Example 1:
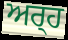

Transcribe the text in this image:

ਅਰ੍‍ਹ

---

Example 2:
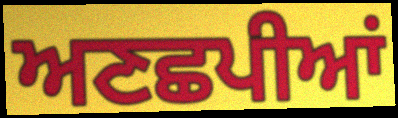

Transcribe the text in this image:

ਅਣਛਪੀਆਂ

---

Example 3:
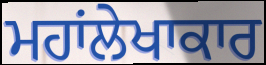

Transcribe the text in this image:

ਮਹਾਂਲੇਖਾਕਾਰ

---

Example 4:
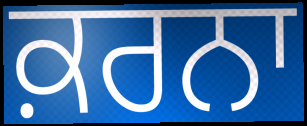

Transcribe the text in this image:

ਕ਼ਰਨਾ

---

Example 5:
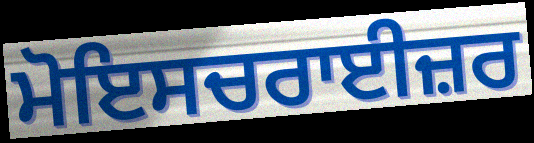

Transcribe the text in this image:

ਮੋਇਸਚਰਾਈਜ਼ਰ